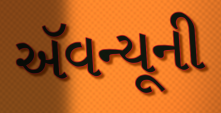
ઍવન્યૂની